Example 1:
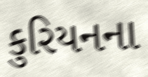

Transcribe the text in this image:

કુરિયનના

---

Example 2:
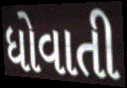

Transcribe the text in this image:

ધોવાતી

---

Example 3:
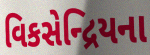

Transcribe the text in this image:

વિકસેન્દ્રિયના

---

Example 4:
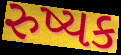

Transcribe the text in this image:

રુષ્યક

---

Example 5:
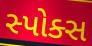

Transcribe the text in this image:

સ્પોક્સ